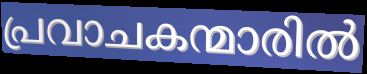
പ്രവാചകന്മാരിൽ